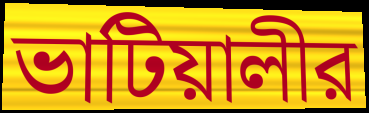
ভাটিয়ালীর